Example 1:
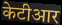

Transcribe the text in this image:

केटीआर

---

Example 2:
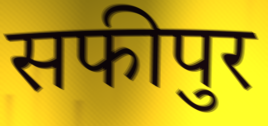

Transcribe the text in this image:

सफीपुर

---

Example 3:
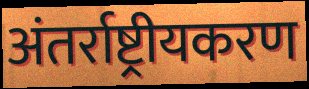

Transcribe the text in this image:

अंतर्राष्ट्रीयकरण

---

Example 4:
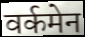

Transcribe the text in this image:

वर्कमेन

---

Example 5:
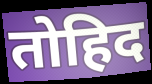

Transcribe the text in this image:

तोहिद